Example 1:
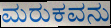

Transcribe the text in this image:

ಮರುಕವನು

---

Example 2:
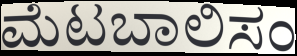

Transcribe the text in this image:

ಮೆಟಬಾಲಿಸಂ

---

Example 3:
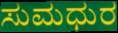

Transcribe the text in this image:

ಸುಮಧುರ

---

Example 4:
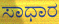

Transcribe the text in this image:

ಸಾಧಾರ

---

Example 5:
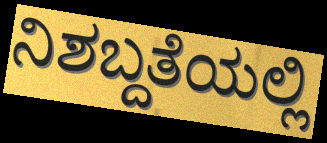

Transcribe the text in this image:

ನಿಶಬ್ದತೆಯಲ್ಲಿ